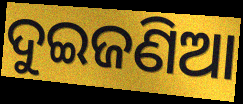
ଦୁଇଜଣିଆ